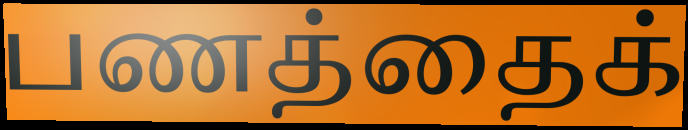
பணத்தைக்